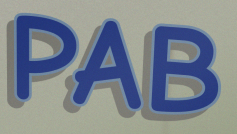
PAB